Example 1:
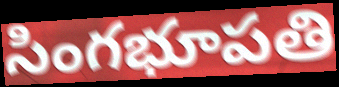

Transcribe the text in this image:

సింగభూపతి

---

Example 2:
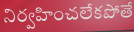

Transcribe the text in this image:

నిర్వహించలేకపోతే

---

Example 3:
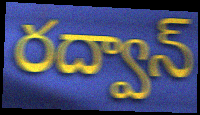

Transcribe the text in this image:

రద్వాన్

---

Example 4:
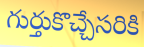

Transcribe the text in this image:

గుర్తుకొచ్చేసరికి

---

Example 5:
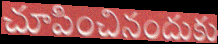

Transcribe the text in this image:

చూపించినందుకు